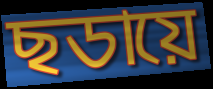
ছডায়ে